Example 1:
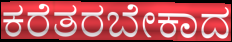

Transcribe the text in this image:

ಕರೆತರಬೇಕಾದ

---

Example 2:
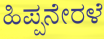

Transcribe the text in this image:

ಹಿಪ್ಪನೇರಳೆ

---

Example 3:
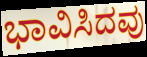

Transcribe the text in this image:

ಭಾವಿಸಿದವು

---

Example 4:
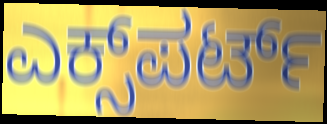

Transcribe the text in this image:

ಎಕ್ಸ್‌ಪರ್ಟ್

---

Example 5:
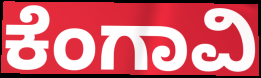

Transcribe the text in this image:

ಕೆಂಗಾವಿ